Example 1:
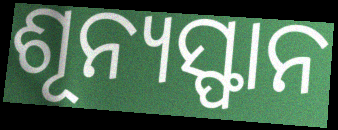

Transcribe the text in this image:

ଶୂନ୍ୟସ୍ଫାନ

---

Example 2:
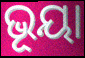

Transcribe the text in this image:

ଭୂୟା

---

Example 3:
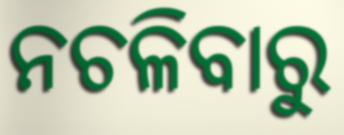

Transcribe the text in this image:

ନଚଳିବାରୁ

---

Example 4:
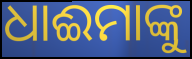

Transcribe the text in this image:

ଧାଈମାଙ୍କୁ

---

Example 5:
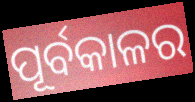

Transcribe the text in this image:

ପୂର୍ବକାଳର